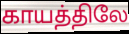
காயத்திலே